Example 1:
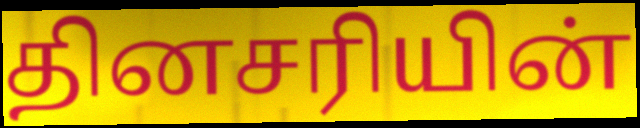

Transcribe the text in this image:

தினசரியின்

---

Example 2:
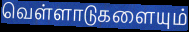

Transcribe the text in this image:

வெள்ளாடுகளையும்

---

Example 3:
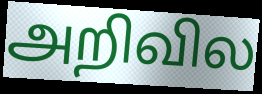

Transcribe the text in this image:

அறிவில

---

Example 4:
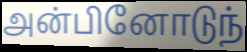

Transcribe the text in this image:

அன்பினோடுந்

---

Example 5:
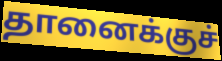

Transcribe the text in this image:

தானைக்குச்